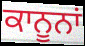
ਕਾਨੂਨਾਂ